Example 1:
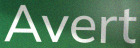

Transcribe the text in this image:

Avert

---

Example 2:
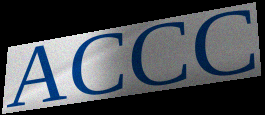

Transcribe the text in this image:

ACCC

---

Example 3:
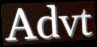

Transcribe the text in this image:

Advt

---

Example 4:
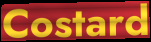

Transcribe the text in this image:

Costard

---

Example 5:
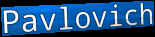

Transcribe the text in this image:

Pavlovich